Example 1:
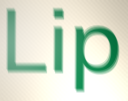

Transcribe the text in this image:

Lip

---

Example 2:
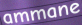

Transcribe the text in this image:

ammane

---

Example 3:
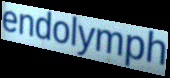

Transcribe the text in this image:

endolymph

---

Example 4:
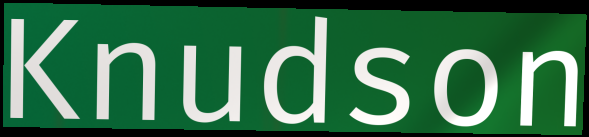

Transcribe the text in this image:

Knudson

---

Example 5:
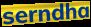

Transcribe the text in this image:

serndha